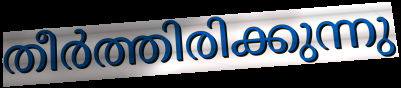
തീർത്തിരിക്കുന്നു